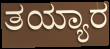
ತಯ್ಯಾರ